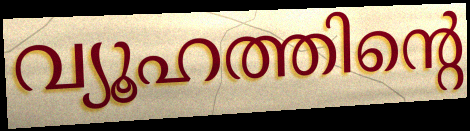
വ്യൂഹത്തിന്റെ